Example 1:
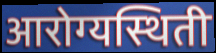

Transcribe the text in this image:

आरोग्यस्थिती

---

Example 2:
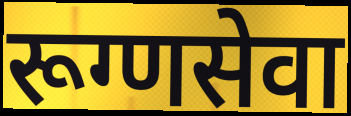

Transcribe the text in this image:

रूग्णसेवा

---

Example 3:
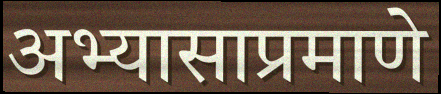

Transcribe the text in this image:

अभ्यासाप्रमाणे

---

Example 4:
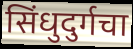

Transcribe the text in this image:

सिंधुदुर्गचा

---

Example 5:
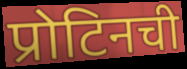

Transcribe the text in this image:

प्रोटिनची